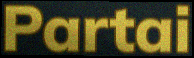
Partai